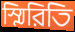
স্মিরিতি